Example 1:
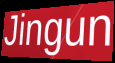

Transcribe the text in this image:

Jingun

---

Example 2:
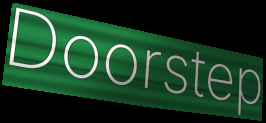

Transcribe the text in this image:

Doorstep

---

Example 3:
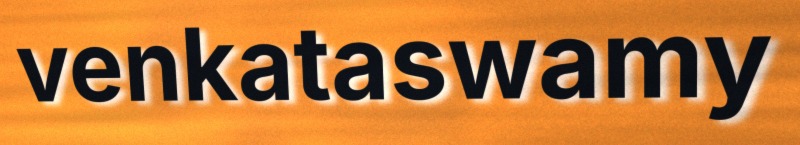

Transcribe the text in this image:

venkataswamy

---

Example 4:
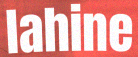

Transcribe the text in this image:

lahine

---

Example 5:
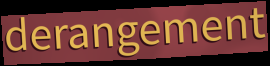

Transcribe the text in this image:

derangement